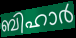
ബിഹാർ